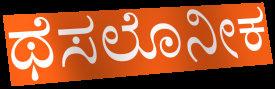
ಥೆಸಲೊನೀಕ